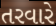
તરવારે